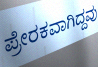
ಪ್ರೇರಕವಾಗಿದ್ದವು